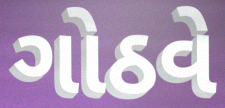
ગોઠવે